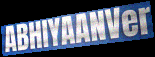
ABHIYAANVer